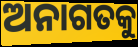
ଅନାଗତକୁ